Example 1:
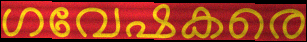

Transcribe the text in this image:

ഗവേഷകരെ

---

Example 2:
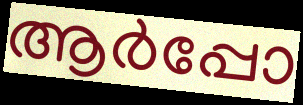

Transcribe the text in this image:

ആർപ്പോ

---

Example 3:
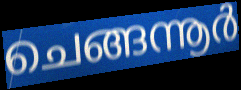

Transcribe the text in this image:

ചെങ്ങന്നൂർ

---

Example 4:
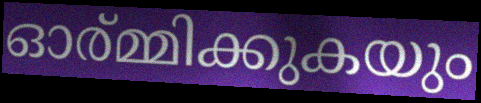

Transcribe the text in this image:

ഓര്മ്മിക്കുകയും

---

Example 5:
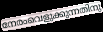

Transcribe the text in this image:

നേരംവെളുക്കുന്നതിനു